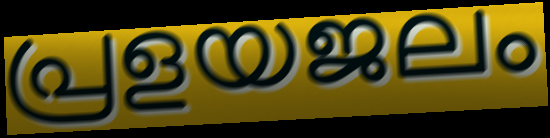
പ്രളയജലം